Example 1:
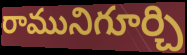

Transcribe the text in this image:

రామునిగూర్చి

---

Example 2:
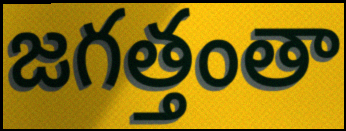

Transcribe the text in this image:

జగత్తంతా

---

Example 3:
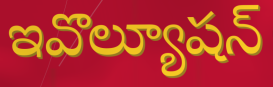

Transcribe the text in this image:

ఇవొల్యూషన్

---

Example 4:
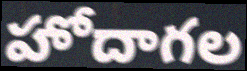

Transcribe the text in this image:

హోదాగల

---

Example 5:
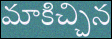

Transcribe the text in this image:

మాకిచ్చిన